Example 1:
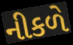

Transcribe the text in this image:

નીકળે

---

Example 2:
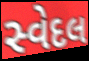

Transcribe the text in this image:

સ્વેદલ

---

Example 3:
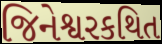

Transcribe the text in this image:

જિનેશ્વરકથિત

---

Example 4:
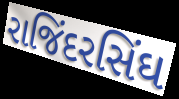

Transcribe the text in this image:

રાજિંદરસિંઘ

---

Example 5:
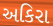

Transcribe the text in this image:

અકિરા